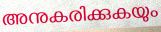
അനുകരിക്കുകയും